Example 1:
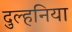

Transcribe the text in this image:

दुल्हनिया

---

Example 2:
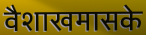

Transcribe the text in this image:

वैशाखमासके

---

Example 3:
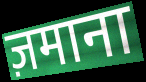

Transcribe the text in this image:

ज़माना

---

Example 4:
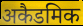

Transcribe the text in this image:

अकैडमिक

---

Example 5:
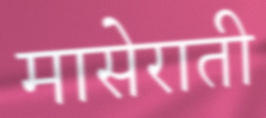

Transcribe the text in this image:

मासेराती